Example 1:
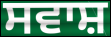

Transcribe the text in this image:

ਸਵਾਸ਼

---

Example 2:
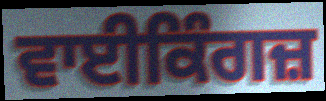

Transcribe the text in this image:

ਵਾਈਕਿੰਗਜ਼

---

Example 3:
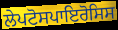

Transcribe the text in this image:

ਲੇਪਟੋਸਪਾਇਰੋਸਿਸ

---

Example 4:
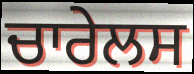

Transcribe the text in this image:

ਚਾਰੇਲਸ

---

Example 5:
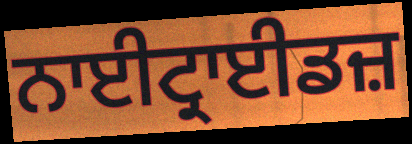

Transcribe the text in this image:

ਨਾਈਟ੍ਰਾਈਡਜ਼